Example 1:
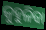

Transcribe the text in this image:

କୁହୁଳିବା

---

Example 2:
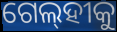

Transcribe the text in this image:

ଗେଲ୍‌ହୀକୁ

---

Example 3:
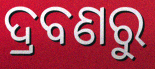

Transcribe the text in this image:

ଦ୍ରବଣରୁ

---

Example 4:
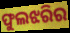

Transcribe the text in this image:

ଫୁଲଝରିର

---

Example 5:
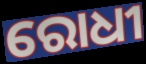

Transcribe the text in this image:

ରୋଧୀ